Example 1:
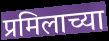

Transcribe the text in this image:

प्रमिलाच्या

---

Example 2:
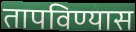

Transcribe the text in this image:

तापविण्यास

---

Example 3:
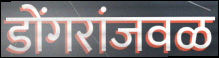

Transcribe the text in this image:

डोंगरांजवळ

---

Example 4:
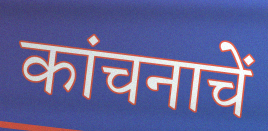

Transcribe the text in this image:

कांचनाचें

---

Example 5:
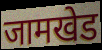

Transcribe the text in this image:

जामखेड